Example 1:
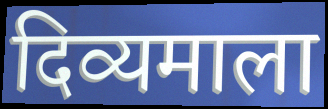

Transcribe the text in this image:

दिव्यमाला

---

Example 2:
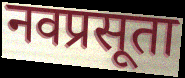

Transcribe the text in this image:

नवप्रसूता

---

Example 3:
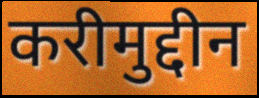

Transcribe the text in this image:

करीमुद्दीन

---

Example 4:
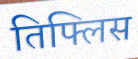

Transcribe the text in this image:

तिफ्लिस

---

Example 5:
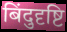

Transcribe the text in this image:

बिंदुदृष्टि